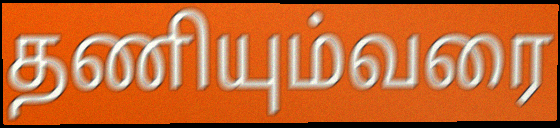
தணியும்வரை